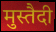
मुस्तैदी